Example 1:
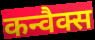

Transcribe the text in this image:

कन्वैक्स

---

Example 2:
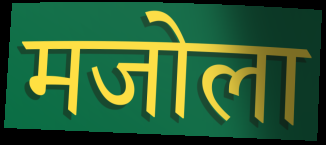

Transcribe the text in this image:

मजोला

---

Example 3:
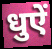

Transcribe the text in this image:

धुऐं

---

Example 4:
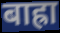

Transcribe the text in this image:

बाह्रा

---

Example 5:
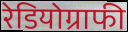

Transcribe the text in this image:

रेडियोग्राफी